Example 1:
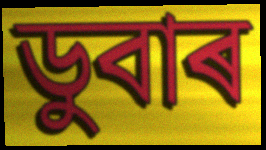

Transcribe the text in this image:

ডুবাৰ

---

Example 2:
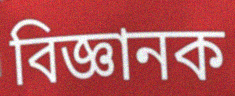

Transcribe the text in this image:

বিজ্ঞানক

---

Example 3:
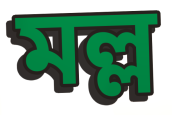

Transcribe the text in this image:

মল্ল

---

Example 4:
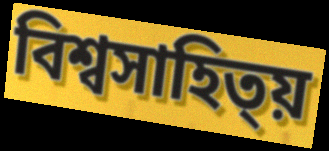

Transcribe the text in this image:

বিশ্বসাহিত্য়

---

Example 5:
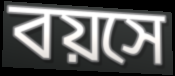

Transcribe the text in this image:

বয়সে